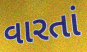
વારતાં